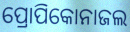
ପ୍ରୋପିକୋନାଜଲ